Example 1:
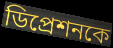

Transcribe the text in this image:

ডিপ্রেশনকে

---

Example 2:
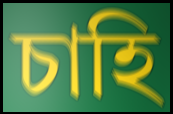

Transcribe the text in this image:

চাহি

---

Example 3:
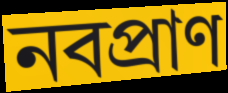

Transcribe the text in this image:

নবপ্রাণ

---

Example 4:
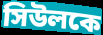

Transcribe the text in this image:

সিউলকে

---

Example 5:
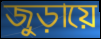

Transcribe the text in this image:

জুড়ায়ে